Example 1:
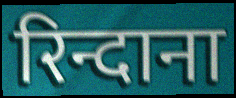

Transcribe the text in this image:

रिन्दाना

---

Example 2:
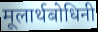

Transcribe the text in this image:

मूलार्थबोधिनी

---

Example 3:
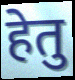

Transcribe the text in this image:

हेतु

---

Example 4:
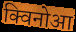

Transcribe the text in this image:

क्विनोआ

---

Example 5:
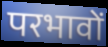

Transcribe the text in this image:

परभावों